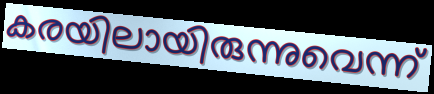
കരയിലായിരുന്നുവെന്ന്